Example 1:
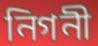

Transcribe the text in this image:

নিগনী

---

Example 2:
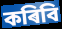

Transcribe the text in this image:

কৰিবি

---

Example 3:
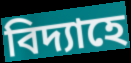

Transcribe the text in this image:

বিদ্যাহে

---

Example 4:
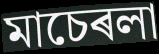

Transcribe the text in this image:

মাচেৰলা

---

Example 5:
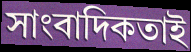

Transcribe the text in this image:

সাংবাদিকতাই